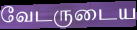
வேடருடைய